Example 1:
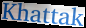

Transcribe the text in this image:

Khattak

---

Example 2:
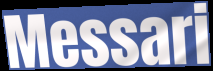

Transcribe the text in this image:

Messari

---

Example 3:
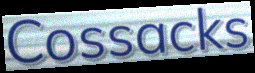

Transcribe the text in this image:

Cossacks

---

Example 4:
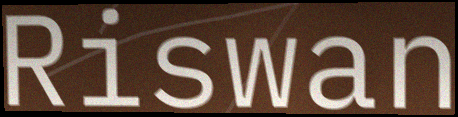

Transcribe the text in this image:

Riswan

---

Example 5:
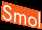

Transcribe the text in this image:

Smol